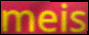
meis